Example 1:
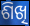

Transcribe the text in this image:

ଶିଖି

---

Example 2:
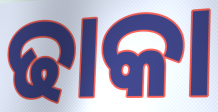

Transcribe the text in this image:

ଢାକା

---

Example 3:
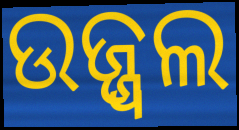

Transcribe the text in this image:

ଉଜ୍ଜ୍ୱଲ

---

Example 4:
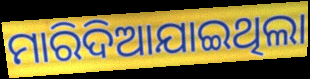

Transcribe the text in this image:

ମାରିଦିଆଯାଇଥିଲା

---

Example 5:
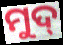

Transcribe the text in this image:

ମୁଦ୍